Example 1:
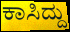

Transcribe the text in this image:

ಕಾಸಿದ್ದು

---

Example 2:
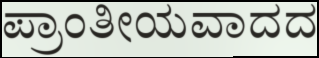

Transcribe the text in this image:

ಪ್ರಾಂತೀಯವಾದದ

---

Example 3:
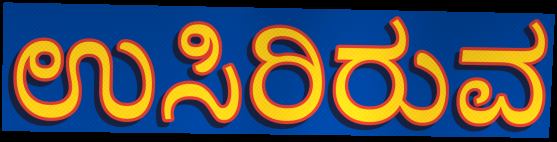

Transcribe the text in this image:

ಉಸಿರಿರುವ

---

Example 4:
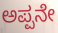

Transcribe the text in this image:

ಅಪ್ಪನೇ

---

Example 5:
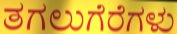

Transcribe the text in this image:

ತಗಲುಗೆರೆಗಳು